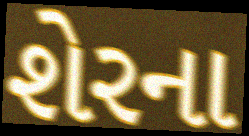
શેરના